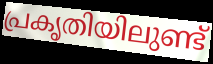
പ്രകൃതിയിലുണ്ട്